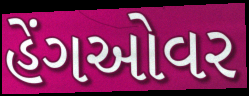
હેંગઓવર